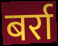
बर्रा